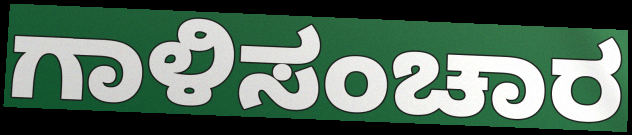
ಗಾಳಿಸಂಚಾರ